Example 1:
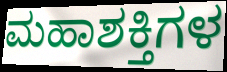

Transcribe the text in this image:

ಮಹಾಶಕ್ತಿಗಳ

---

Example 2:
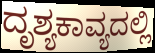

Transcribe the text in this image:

ದೃಶ್ಯಕಾವ್ಯದಲ್ಲಿ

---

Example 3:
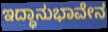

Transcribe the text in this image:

ಇದ್ಧಾನುಭಾವೇನ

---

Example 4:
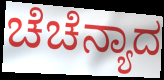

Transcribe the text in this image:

ಚೆಚೆನ್ಯಾದ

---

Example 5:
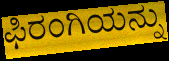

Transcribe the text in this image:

ಫಿರಂಗಿಯನ್ನು